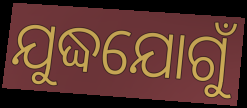
ଯୁଦ୍ଧଯୋଗୁଁ